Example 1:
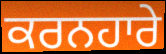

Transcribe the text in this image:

ਕਰਨਹਾਰੇ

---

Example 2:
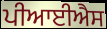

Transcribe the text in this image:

ਪੀਆਈਐਸ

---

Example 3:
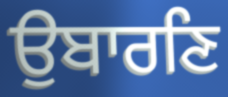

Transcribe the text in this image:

ਉਬਾਰਣਿ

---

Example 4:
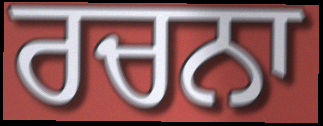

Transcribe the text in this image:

ਰਚਨਾ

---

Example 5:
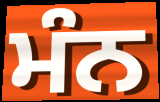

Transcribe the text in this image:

ਮੰਨ